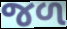
જળ